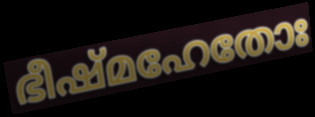
ഭീഷ്മഹേതോഃ